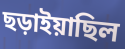
ছড়াইয়াছিল